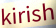
kirish